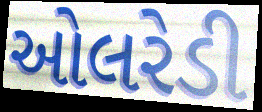
ઓલરેડી